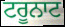
ਟਰੂਨਾਟ